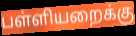
பள்ளியறைக்கு